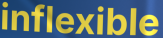
inflexible